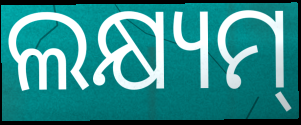
ଲକ୍ଷ୍ୟମ୍